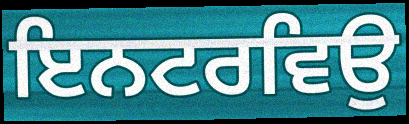
ਇਨਟਰਵਿਉ